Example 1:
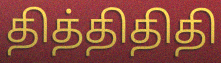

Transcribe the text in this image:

தித்திதிதி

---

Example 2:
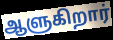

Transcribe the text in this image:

ஆளுகிறார்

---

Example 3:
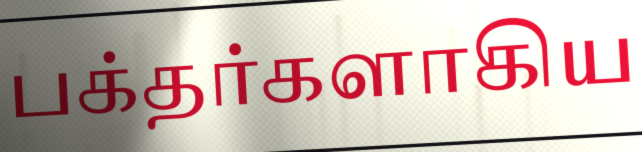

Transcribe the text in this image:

பக்தர்களாகிய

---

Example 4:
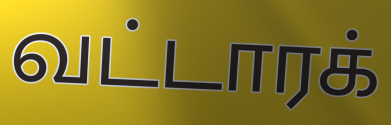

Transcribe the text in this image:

வட்டாரக்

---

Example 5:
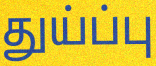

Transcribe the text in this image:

துய்ப்பு